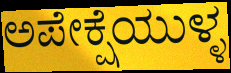
ಅಪೇಕ್ಷೆಯುಳ್ಳ